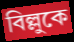
বিল্লুকে